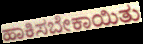
ಹಾಕಿಸಬೇಕಾಯಿತು